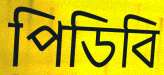
পিডিবি